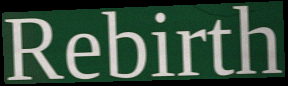
Rebirth